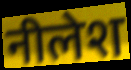
नीलेश